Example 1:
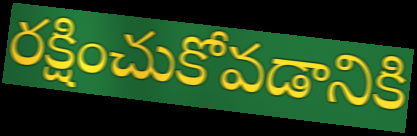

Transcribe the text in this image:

రక్షించుకోవడానికి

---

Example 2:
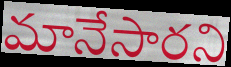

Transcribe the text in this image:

మానేసారని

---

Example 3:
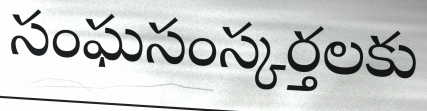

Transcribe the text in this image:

సంఘసంస్కర్తలకు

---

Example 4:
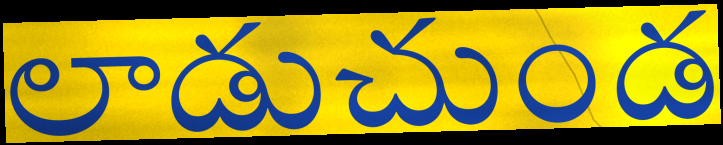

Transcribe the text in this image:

లాడుచుండ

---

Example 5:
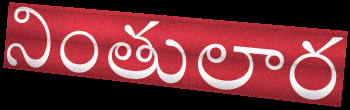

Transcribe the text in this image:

నింతులార